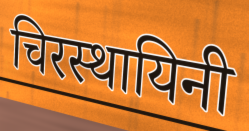
चिरस्थायिनी